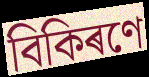
বিকিৰণে